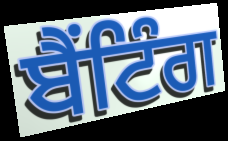
ਬੈਂਟਿੰਗ